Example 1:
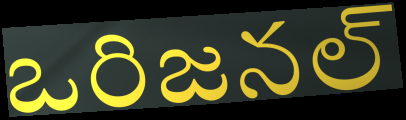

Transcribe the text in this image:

ఒరిజనల్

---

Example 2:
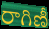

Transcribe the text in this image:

రాగిణీ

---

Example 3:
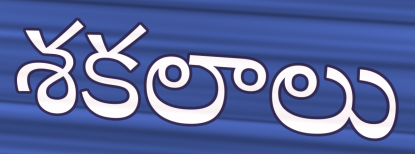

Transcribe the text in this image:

శకలాలు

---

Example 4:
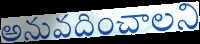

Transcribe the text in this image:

అనువదించాలని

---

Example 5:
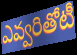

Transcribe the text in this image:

ఎవ్వరితోటీ